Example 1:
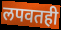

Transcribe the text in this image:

लपवतही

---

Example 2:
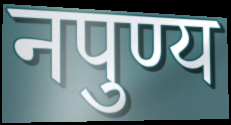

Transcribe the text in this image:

नपुण्य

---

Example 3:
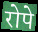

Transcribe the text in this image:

रोपे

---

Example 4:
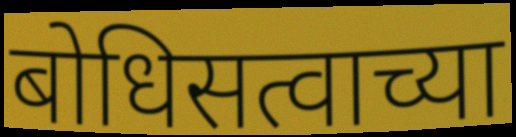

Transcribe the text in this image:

बोधिसत्वाच्या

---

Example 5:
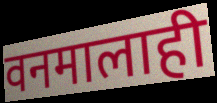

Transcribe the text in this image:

वनमालाही